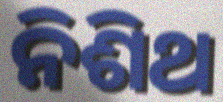
ନିଶିଥ